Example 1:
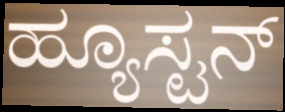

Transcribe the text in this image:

ಹ್ಯೂಸ್ಟನ್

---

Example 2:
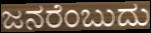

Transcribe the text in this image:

ಜನರೆಂಬುದು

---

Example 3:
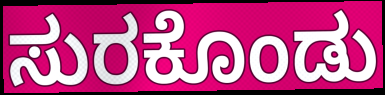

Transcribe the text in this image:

ಸುರಕೊಂಡು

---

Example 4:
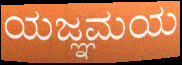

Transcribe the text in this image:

ಯಜ್ಞಮಯ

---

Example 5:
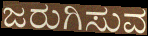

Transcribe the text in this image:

ಜರುಗಿಸುವ